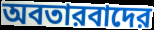
অবতারবাদের